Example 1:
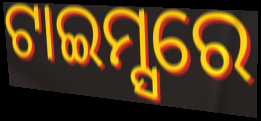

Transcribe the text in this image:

ଟାଇମ୍ସରେ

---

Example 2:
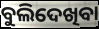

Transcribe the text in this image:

ବୁଲିଦେଖିବା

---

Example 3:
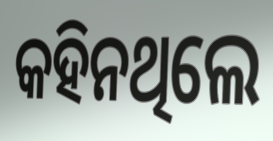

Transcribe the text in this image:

କହିନଥିଲେ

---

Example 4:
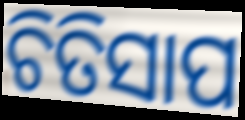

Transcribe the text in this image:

ଚିତିସାପ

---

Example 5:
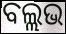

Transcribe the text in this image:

ବଲ୍ଲଭ